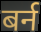
बर्न